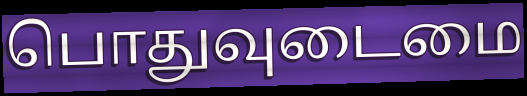
பொதுவுடைமை